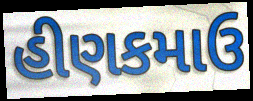
હીણકમાઉ